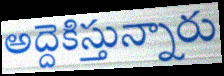
అద్దెకిస్తున్నారు